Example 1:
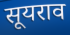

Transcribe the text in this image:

सूयराव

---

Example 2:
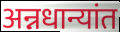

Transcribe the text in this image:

अन्नधान्यांत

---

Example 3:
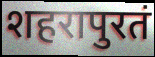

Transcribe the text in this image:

शहरापुरतं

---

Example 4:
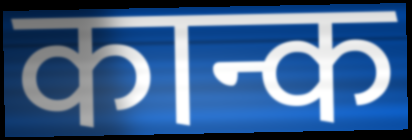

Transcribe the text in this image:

कान्क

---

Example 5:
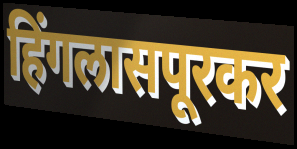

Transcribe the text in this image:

हिंगलासपूरकर